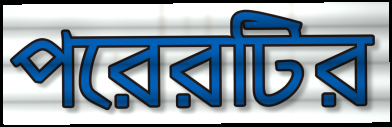
পরেরটির